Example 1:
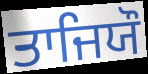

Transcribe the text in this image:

ਤਾਜਿਯੌ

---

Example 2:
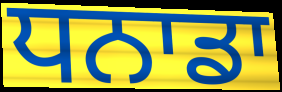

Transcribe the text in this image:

ਧਨਾਡਾ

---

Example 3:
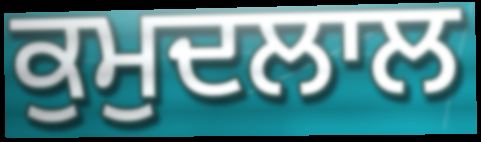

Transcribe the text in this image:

ਕੁਮੁਦਲਾਲ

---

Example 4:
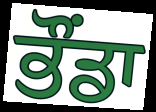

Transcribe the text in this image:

ਭੌਂਡਾ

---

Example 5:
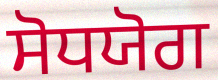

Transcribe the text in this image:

ਸੋਧਯੋਗ